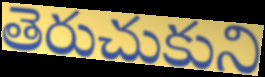
తెరుచుకుని